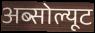
अब्सोल्यूट